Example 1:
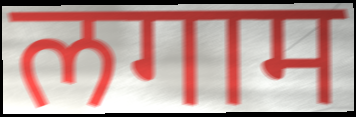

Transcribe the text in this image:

लगाम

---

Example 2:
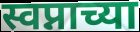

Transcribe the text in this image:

स्वप्नाच्या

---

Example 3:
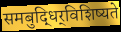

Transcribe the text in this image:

समबुद्धिर्विशिष्यते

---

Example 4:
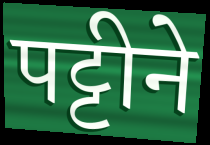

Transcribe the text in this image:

पट्टीने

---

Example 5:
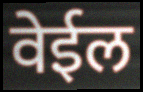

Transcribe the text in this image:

वेईल